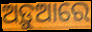
ଅଡ଼ୁଆରେ